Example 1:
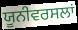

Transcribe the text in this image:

ਯੂਨੀਵਰਸਲਾਂ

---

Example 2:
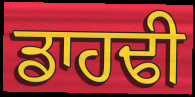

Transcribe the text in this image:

ਡਾਹਢੀ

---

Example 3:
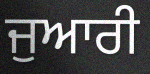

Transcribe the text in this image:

ਜੁਆਰੀ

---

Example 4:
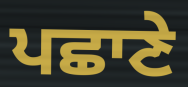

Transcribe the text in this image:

ਪਛਾਣੇ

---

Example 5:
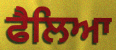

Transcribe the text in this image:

ਫੈਲਿਆ